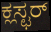
ಕ್ಲಸ್ಟರ್